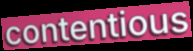
contentious